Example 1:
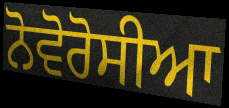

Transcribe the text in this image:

ਨੋਵੋਰੋਸੀਆ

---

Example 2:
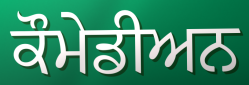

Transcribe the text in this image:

ਕੌਮੇਡੀਅਨ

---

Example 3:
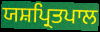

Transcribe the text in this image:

ਯਸ਼ਪ੍ਰਿਤਪਾਲ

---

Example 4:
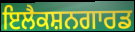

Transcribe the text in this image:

ਇਲੈਕਸ਼ਨਗਾਰਡ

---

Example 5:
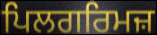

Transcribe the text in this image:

ਪਿਲਗਰਿਮਜ਼